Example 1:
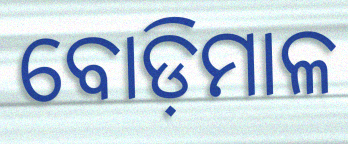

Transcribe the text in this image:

ବୋଡ଼ିମାଳ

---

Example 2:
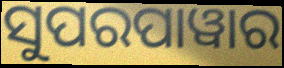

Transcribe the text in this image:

ସୁପରପାୱାର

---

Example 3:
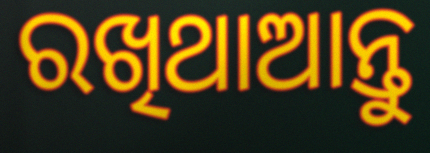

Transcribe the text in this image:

ରଖିଥାଆନ୍ତୁ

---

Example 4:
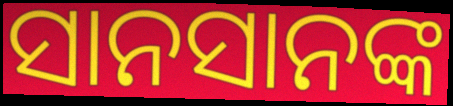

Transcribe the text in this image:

ସାନସାନଙ୍କ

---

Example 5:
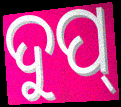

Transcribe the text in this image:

ଦୁପ୍